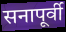
सनापूर्वी